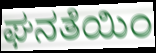
ಘನತೆಯಿಂ